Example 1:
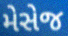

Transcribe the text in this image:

મેસેજ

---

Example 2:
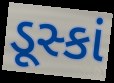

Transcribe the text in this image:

ડૂસ્કાં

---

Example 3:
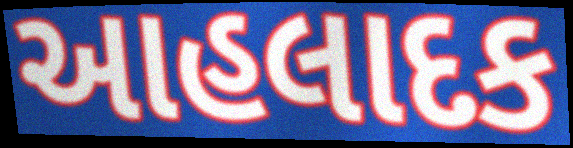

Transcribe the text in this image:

આહલાદક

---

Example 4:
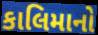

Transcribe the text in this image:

કાલિમાનો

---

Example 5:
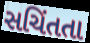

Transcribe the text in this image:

સચિંતતા